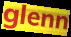
glenn